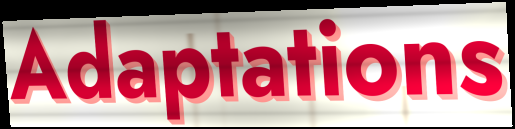
Adaptations